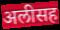
अलीसह